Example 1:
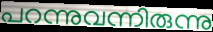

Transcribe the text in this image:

പറന്നുവന്നിരുന്നു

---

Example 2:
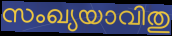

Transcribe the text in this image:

സംഖ്യയാവിതു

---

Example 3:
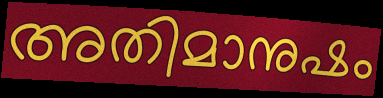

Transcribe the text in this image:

അതിമാനുഷം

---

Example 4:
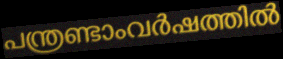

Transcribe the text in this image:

പന്ത്രണ്ടാംവർഷത്തിൽ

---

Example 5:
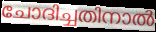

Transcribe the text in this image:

ചോദിച്ചതിനാൽ